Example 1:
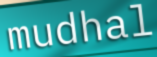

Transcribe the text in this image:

mudhal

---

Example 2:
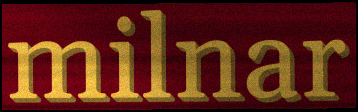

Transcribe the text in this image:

milnar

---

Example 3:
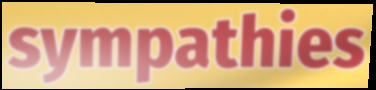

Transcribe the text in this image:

sympathies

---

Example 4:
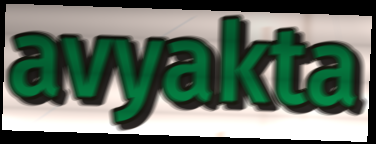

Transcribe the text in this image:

avyakta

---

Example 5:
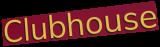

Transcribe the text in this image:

Clubhouse